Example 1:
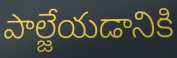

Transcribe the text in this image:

పాల్జేయడానికి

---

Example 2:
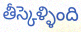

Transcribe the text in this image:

తీస్కెళ్ళింది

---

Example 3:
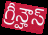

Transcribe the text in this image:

గ్రీన్హౌస్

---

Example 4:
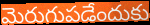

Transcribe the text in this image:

మెరుగుపడేందుకు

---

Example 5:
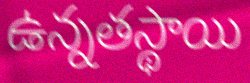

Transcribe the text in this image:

ఉన్నతస్థాయి